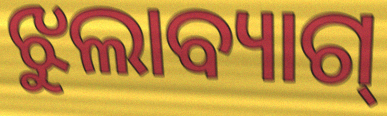
ଝୁଲାବ୍ୟାଗ୍